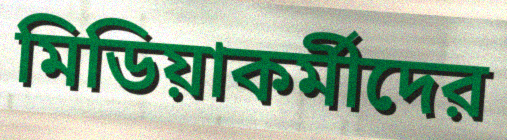
মিডিয়াকর্মীদের